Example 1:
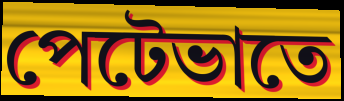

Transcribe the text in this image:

পেটেভাতে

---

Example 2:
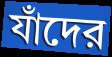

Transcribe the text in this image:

যাঁদের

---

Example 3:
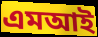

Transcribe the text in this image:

এমআই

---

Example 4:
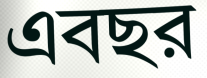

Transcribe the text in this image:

এবছর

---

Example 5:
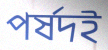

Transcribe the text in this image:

পর্ষদই